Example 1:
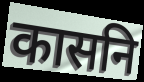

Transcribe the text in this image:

कासनि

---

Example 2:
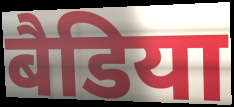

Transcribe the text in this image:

बैडिया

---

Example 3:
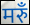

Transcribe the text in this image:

मरुँ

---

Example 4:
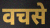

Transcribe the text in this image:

वचसे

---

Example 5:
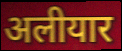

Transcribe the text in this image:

अलीयार